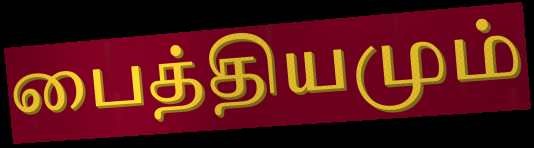
பைத்தியமும்